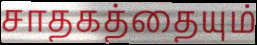
சாதகத்தையும்